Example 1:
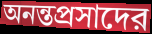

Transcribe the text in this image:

অনন্তপ্রসাদের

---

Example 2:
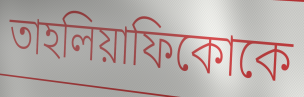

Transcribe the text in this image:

তাহলিয়াফিকোকে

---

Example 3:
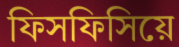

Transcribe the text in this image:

ফিসফিসিয়ে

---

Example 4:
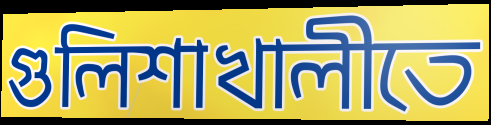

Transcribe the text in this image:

গুলিশাখালীতে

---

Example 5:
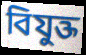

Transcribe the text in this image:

বিযুক্ত